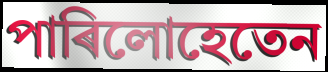
পাৰিলোহেতেন